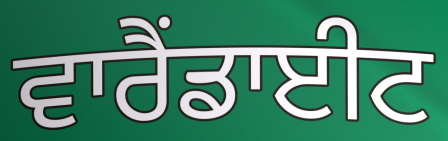
ਵਾਰੈਂਡਾਈਟ